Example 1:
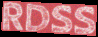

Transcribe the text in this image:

RDSS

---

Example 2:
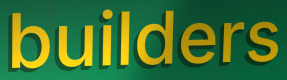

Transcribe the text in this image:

builders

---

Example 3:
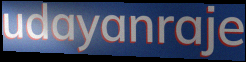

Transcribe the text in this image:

udayanraje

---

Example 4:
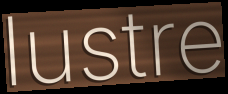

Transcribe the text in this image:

lustre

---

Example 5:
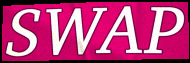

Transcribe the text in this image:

SWAP